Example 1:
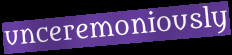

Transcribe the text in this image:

unceremoniously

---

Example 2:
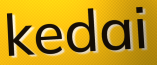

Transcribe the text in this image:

kedai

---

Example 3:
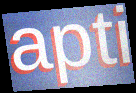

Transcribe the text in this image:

apti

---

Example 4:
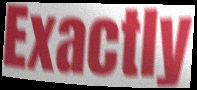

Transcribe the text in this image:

Exactly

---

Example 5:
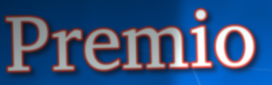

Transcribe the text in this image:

Premio